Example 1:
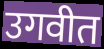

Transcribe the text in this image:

उगवीत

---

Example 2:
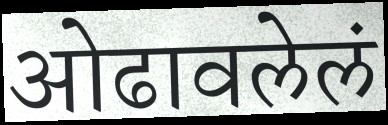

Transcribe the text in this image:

ओढावलेलं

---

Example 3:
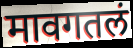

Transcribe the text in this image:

मावगतलं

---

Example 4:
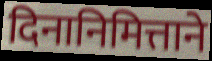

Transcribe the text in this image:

दिनानिमित्ताने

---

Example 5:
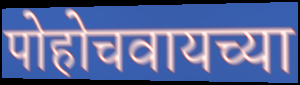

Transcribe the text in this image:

पोहोचवायच्या